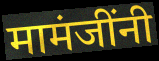
मामंजींनी